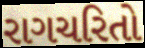
રાગચરિતો